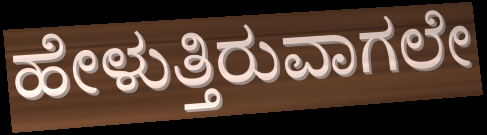
ಹೇಳುತ್ತಿರುವಾಗಲೇ